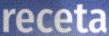
receta